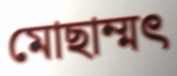
মোছাম্মৎ